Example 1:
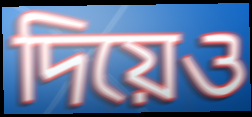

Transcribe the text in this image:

দিয়েও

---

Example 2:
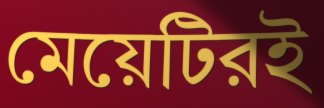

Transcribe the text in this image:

মেয়েটিরই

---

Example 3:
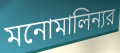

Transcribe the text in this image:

মনোমালিন্যর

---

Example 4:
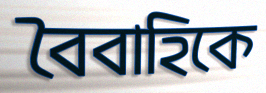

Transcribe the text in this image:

বৈবাহিকে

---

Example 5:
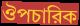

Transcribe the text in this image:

ঔপচারিক